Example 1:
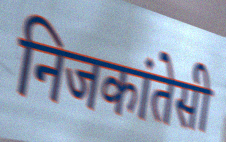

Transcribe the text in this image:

निजकांतेसी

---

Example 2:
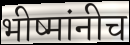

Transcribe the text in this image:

भीष्मांनीच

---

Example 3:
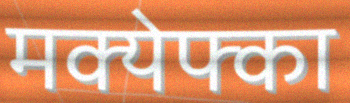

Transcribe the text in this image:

मक्येफ्का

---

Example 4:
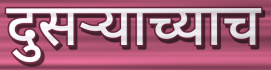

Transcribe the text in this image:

दुसऱ्याच्याच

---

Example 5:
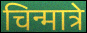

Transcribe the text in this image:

चिन्मात्रे